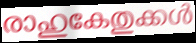
രാഹുകേതുക്കൾ